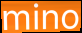
mino